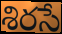
శిరసే